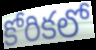
కోరికలో